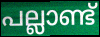
പല്ലാണ്ട്